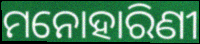
ମନୋହାରିଣୀ